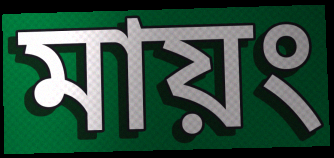
মায়ং